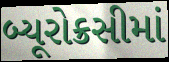
બ્યૂરોક્રસીમાં